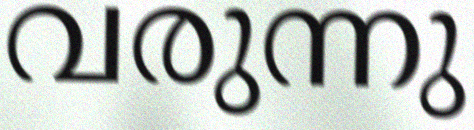
വരുന്നു